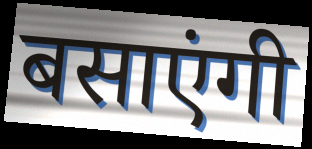
बसाएंगी